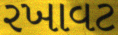
રખાવટ